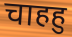
चाहहु